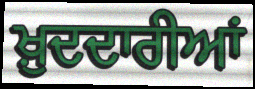
ਖ਼ੁਦਦਾਰੀਆਂ